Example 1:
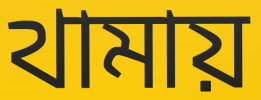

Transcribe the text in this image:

থামায়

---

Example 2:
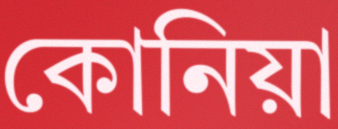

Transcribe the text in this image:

কোনিয়া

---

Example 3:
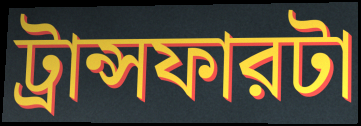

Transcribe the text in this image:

ট্রান্সফারটা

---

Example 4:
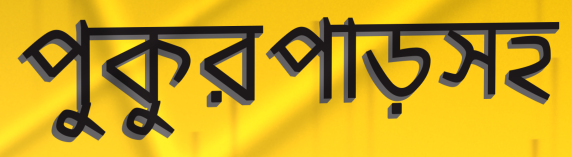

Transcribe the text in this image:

পুকুরপাড়সহ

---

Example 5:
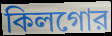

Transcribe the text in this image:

কিলগোর